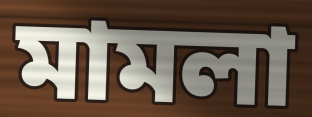
মামলা